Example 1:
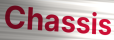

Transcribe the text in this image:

Chassis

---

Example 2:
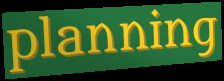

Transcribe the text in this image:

planning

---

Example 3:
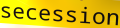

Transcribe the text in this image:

secession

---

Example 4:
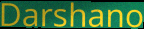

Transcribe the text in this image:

Darshano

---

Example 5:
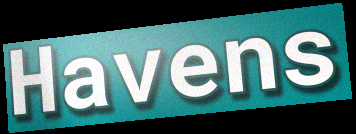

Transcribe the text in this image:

Havens